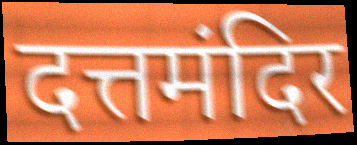
दत्तमंदिर